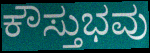
ಕೌಸ್ತುಭವು